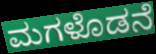
ಮಗಳೊಡನೆ